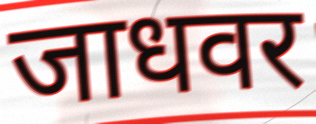
जाधवर